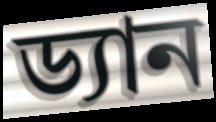
ড্যান